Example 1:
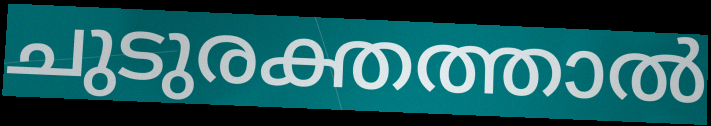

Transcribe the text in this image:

ചുടുരക്തത്താൽ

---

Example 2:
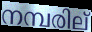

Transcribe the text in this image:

നമ്പരില്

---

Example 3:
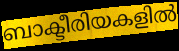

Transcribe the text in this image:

ബാക്ടീരിയകളിൽ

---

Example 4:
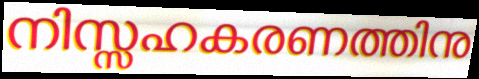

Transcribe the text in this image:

നിസ്സഹകരണത്തിനു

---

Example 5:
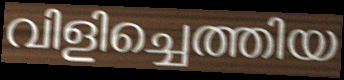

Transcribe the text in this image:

വിളിച്ചെത്തിയ